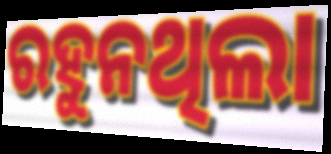
ରହୁନଥିଲା